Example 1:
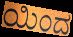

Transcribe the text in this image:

ಯಿಂದ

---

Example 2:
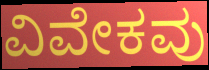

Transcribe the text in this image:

ವಿವೇಕವು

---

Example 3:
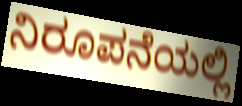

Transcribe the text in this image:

ನಿರೂಪನೆಯಲ್ಲಿ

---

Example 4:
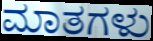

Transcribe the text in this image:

ಮಾತಗಳು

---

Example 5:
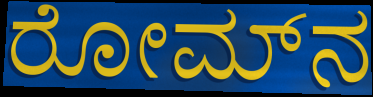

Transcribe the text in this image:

ರೋಮ್‌ನ